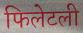
फिलेटली